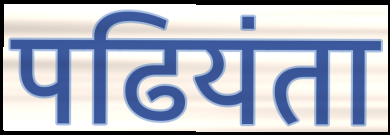
पढियंता